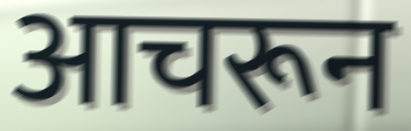
आचरून